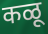
कळू